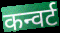
कन्वर्ट